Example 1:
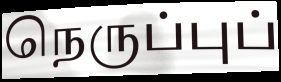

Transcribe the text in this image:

நெருப்புப்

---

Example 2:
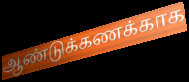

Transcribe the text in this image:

ஆண்டுக்கணக்காக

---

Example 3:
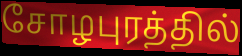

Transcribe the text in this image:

சோழபுரத்தில்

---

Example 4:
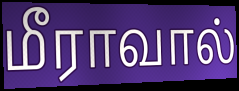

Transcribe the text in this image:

மீராவால்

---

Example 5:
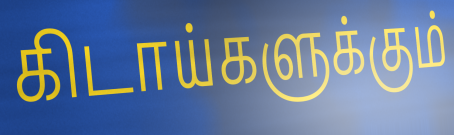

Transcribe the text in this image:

கிடாய்களுக்கும்